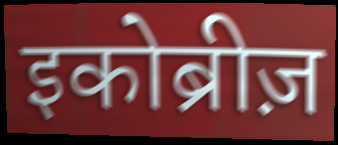
इकोब्रीज़